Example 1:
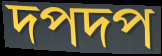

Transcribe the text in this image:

দপদপ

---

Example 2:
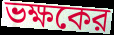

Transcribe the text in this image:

ভক্ষকের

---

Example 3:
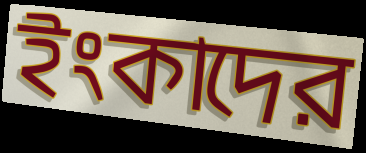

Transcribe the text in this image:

ইংকাদের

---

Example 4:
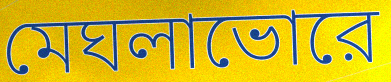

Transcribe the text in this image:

মেঘলাভোরে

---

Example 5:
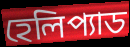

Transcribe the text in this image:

হেলিপ্যাড